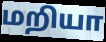
மறியா